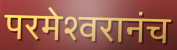
परमेश्वरानंच